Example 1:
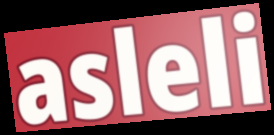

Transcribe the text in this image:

asleli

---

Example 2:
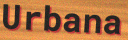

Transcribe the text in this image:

Urbana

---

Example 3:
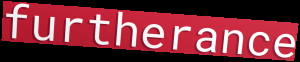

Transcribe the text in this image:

furtherance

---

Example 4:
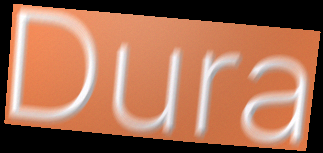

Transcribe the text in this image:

Dura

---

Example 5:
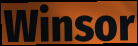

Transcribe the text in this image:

Winsor